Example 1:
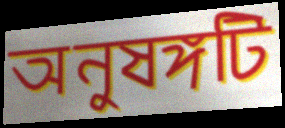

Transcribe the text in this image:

অনুষঙ্গটি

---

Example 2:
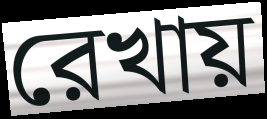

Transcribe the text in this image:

রেখায়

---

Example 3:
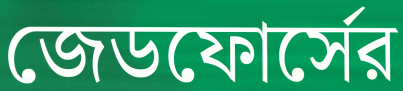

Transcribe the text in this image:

জেডফোর্সের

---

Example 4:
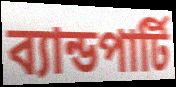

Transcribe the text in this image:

ব্যান্ডপার্টি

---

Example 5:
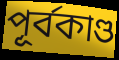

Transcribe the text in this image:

পূর্বকাণ্ড